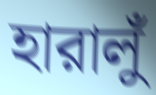
হারালুঁ